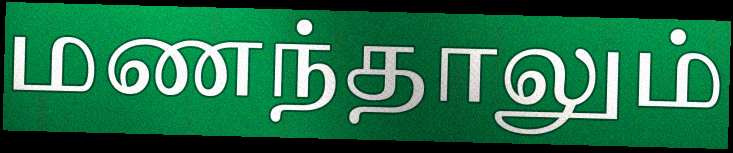
மணந்தாலும்